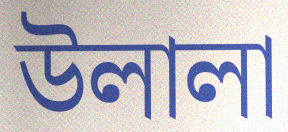
উলালা